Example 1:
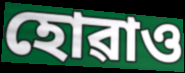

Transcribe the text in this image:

হোৱাও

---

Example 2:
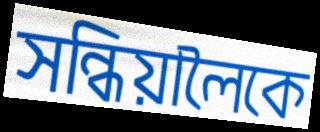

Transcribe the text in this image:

সন্ধিয়ালৈকে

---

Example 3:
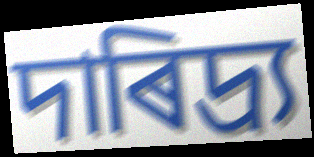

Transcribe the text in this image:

দাৰিদ্ৰ্য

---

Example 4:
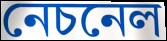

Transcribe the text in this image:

নেচনেল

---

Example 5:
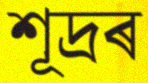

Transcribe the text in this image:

শূদ্ৰৰ